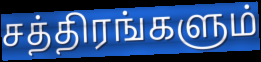
சத்திரங்களும்